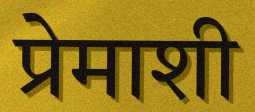
प्रेमाशी